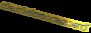
നിലനിര്ത്താനുമാണ്